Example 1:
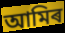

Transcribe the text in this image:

আমিৰ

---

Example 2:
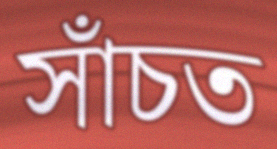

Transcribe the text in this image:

সাঁচত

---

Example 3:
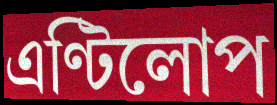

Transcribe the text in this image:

এণ্টিলোপ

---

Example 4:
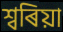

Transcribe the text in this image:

শ্বৰিয়া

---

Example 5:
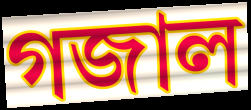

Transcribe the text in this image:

গজাল